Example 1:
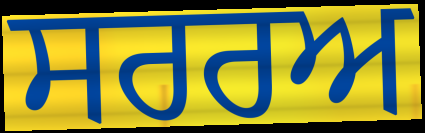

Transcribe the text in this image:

ਸਰਰਅ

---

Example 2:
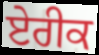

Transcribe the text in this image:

ਏਰੀਕ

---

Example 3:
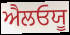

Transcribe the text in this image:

ਐਲਓਯੂ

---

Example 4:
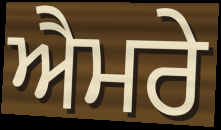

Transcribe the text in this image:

ਐਮਰੇ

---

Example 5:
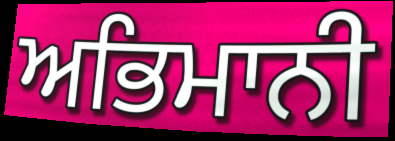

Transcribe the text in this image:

ਅਭਿਮਾਨੀ